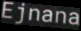
Ejnana